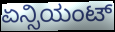
ಏನ್ಸಿಯಂಟ್